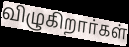
விழுகிறார்கள்